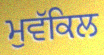
ਮੁਵੱਕਿਲ